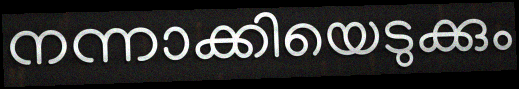
നന്നാക്കിയെടുക്കും